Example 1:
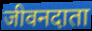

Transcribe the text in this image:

जीवनदाता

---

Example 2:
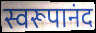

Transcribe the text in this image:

स्‍वरूपानंद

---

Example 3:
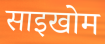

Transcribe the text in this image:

साइखोम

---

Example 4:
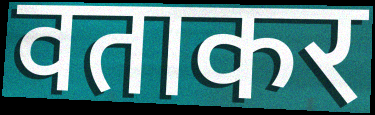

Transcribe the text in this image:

वताकर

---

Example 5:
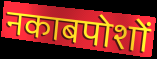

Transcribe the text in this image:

नकाबपोशों